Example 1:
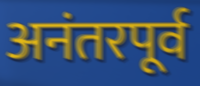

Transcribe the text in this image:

अनंतरपूर्व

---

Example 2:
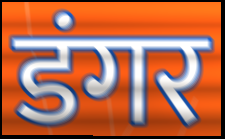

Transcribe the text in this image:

डंगर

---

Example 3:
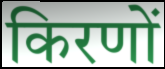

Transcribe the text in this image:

किरणों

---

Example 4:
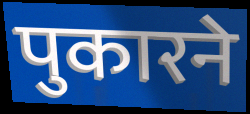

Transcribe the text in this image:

पुकारने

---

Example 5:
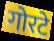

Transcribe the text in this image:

गोरटे